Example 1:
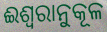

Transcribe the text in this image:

ଈଶ୍ଵରାନୁକୂଳ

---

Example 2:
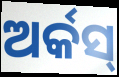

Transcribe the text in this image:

ଅର୍କସ୍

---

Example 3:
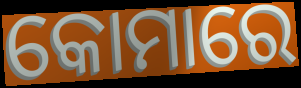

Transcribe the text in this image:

କୋମାରେ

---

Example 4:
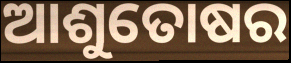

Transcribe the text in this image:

ଆଶୁତୋଷର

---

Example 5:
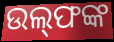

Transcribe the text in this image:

ଉଲ୍‌ଫଙ୍କ